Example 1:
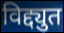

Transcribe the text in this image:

विद्द्युत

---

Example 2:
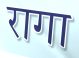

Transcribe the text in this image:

रागा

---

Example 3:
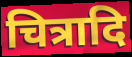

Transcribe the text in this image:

चित्रादि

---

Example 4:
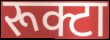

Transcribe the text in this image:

रूक्टा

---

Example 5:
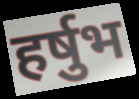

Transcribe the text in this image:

हर्षुभ